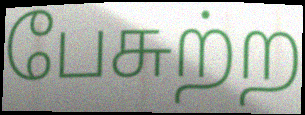
பேசுற்ற